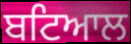
ਬਟਿਆਲ